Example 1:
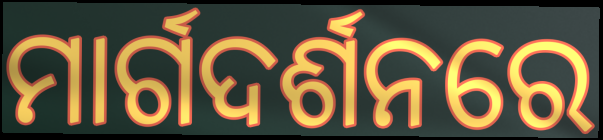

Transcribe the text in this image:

ମାର୍ଗଦର୍ଶନରେ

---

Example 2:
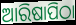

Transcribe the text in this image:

ଆରିଷାପିଠା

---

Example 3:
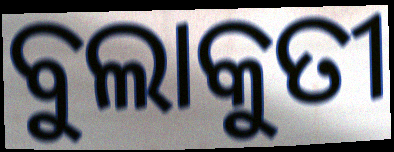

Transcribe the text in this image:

ବୁଲାକୁତୀ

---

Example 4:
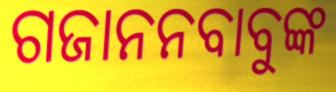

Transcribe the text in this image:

ଗଜାନନବାବୁଙ୍କ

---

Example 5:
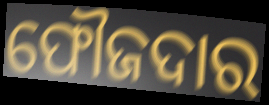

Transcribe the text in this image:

ଫୌଜଦାର